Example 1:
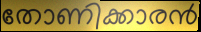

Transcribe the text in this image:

തോണിക്കാരൻ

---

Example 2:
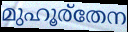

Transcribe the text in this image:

മുഹൂര്തേന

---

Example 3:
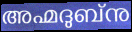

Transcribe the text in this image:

അഹ്മദുബ്നു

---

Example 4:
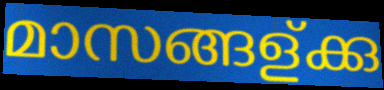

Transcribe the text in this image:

മാസങ്ങള്ക്കു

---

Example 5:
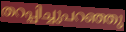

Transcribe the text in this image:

തറപ്പിച്ചുപറഞ്ഞു